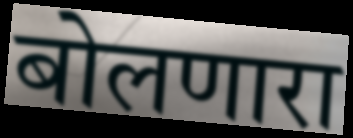
बोलणारा